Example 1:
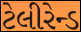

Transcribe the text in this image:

ટેલીરેન્ડ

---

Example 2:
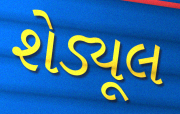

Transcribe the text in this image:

શેડ્યૂલ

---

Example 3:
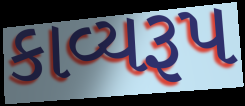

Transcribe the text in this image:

કાવ્યરૂપ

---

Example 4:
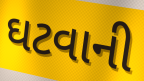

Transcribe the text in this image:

ઘટવાની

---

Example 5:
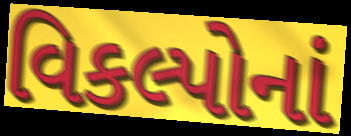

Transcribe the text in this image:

વિકલ્પોનાં